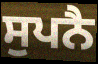
ਸੁਪਨੈ